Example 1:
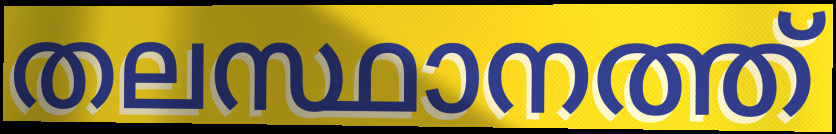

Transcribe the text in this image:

തലസ്ഥാനത്ത്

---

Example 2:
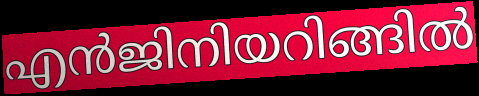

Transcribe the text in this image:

എൻജിനിയറിങ്ങിൽ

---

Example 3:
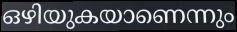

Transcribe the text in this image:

ഒഴിയുകയാണെന്നും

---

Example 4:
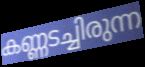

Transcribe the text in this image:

കണ്ണടച്ചിരുന്ന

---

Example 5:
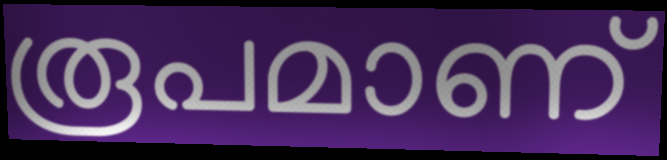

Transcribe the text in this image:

രൂപമാണ്